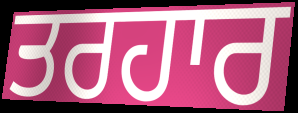
ਤਰਹਾਰ